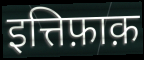
इत्तिफ़ाक़